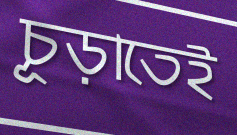
চূড়াতেই